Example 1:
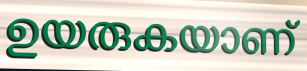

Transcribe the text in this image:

ഉയരുകയാണ്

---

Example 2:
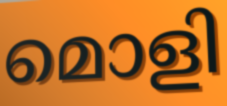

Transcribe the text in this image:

മൊളി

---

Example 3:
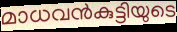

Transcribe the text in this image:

മാധവൻകുട്ടിയുടെ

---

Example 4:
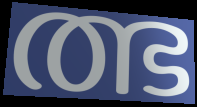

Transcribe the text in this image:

ത്ഭ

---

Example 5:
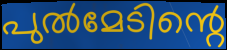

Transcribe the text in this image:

പുൽമേടിന്റെ